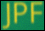
JPF